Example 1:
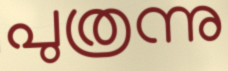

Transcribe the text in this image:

പുത്രന്നു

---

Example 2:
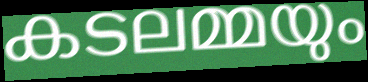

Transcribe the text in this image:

കടലമ്മയും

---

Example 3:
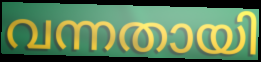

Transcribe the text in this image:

വന്നതായി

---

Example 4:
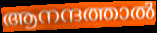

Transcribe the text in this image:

ആനന്ദത്താൽ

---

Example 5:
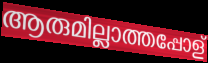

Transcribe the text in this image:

ആരുമില്ലാത്തപ്പോള്